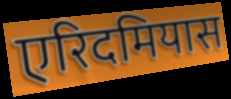
एरिदमियास